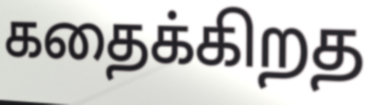
கதைக்கிறத